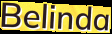
Belinda